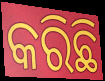
କରିଛି